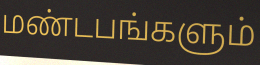
மண்டபங்களும்